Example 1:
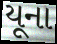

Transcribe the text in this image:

યૂના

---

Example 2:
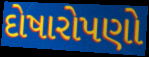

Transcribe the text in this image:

દોષારોપણો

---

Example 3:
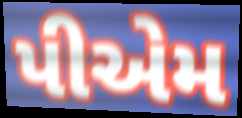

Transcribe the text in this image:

પીએમ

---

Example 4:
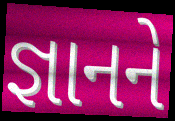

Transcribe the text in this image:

જ્ઞાનને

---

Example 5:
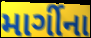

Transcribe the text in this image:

માર્ગીના